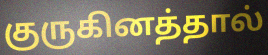
குருகினத்தால்